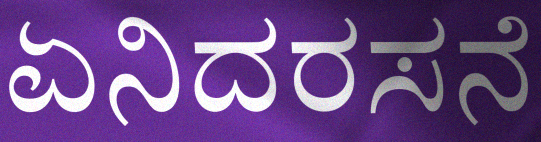
ಏನಿದರಸನೆ